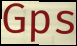
Gps